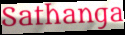
Sathanga